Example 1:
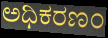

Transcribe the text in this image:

ಅಧಿಕರಣಂ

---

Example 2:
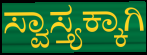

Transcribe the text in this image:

ಸ್ವಾಸ್ತ್ಯಕ್ಕಾಗಿ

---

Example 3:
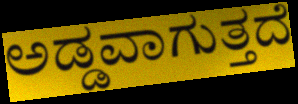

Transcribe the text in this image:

ಅಡ್ಡವಾಗುತ್ತದೆ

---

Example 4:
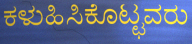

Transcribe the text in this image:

ಕಳುಹಿಸಿಕೊಟ್ಟವರು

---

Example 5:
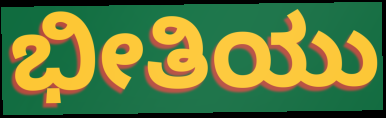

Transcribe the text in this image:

ಭೀತಿಯು